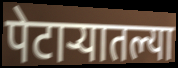
पेटाऱ्यातल्या